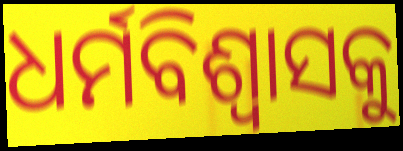
ଧର୍ମବିଶ୍ୱାସକୁ